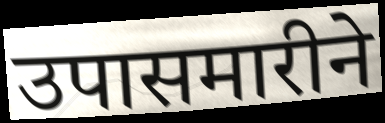
उपासमारीने